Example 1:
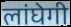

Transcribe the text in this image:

लांघेगी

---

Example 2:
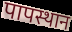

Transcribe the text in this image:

पापस्थान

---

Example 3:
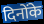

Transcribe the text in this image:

दिनोंके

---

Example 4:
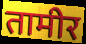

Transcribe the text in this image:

तामीर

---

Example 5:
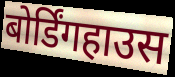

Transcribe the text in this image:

बोर्डिंगहाउस